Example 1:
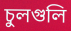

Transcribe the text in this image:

চুলগুলি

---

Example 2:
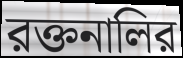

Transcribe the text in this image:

রক্তনালির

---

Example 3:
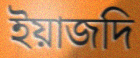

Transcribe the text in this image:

ইয়াজদি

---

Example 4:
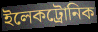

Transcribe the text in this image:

ইলেকট্রোনিক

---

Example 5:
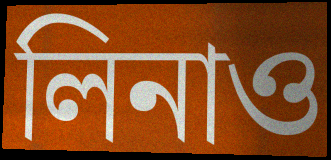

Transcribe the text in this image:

লিনাও